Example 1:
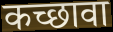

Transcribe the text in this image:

कच्छावा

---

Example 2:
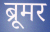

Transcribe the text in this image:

ब्रूमर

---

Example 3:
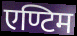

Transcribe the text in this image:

एण्टिम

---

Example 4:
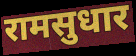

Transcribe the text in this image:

रामसुधार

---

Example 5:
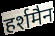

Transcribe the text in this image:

हर्शमैन